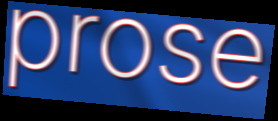
prose